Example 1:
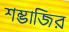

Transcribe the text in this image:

শম্ভাজির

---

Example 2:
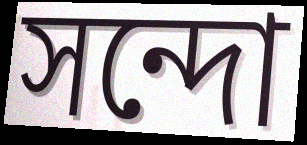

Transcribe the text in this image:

সন্দো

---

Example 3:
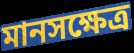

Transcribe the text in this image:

মানসক্ষেত্র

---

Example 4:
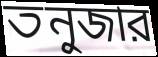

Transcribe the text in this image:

তনুজার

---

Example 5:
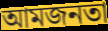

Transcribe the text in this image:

আমজনতা